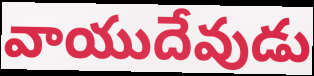
వాయుదేవుడు